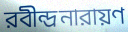
রবীন্দ্রনারায়ণ